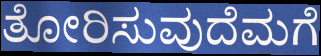
ತೋರಿಸುವುದೆಮಗೆ